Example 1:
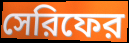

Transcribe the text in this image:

সেরিফের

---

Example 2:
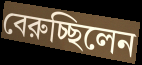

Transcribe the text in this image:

বেরুচ্ছিলেন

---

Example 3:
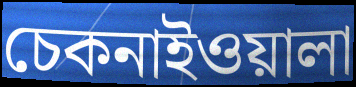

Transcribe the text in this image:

চেকনাইওয়ালা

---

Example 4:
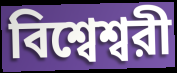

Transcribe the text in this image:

বিশ্বেশ্বরী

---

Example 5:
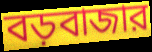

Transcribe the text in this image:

বড়বাজার